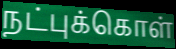
நட்புக்கொள்